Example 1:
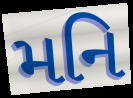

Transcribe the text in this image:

મનિ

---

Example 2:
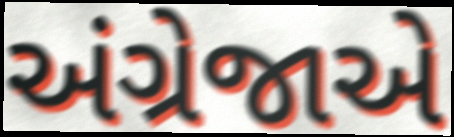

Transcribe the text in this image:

અંગ્રેજાએ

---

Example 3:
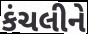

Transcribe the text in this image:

કંચલીને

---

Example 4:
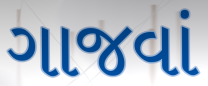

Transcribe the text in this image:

ગાજવાં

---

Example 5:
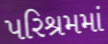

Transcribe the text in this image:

પરિશ્રમમાં